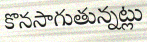
కొనసాగుతున్నట్లు